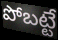
పోబట్టే